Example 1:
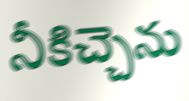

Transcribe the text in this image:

నీకిచ్చెను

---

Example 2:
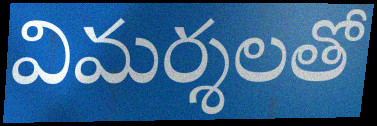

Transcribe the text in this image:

విమర్శలతో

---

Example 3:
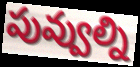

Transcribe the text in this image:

పువ్వుల్ని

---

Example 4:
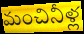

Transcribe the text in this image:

మంచినీళ్ల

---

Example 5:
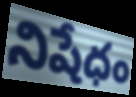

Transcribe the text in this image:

నిషేధం